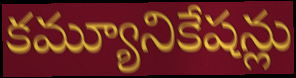
కమ్యూనికేషన్లు